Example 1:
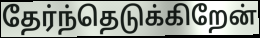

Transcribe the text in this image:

தேர்ந்தெடுக்கிறேன்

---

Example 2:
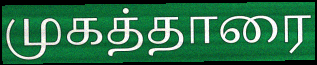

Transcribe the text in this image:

முகத்தாரை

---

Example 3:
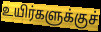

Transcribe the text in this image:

உயிர்களுக்குச்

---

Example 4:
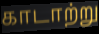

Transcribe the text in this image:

காடாற்று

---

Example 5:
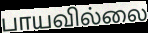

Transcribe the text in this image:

பாயவில்லை